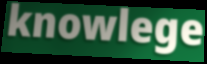
knowlege